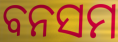
ବନସମ